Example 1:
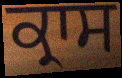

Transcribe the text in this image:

ਕ੍ਰਾਸ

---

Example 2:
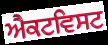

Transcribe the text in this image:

ਐਕਟਵਿਸਟ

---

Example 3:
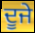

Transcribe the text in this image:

ਦੂਜੇ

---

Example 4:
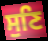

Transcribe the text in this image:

ਸੁਣਿ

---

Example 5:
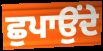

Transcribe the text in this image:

ਛੁਪਾਉਂਦੇ